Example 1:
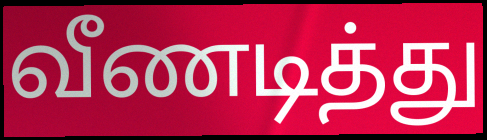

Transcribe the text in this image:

வீணடித்து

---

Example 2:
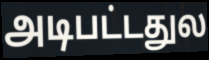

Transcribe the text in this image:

அடிபட்டதுல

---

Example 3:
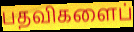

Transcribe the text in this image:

பதவிகளைப்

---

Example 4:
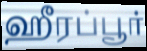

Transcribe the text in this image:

ஹீரப்பூர்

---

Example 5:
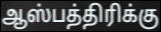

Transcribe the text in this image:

ஆஸ்பத்திரிக்கு